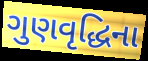
ગુણવૃદ્ધિના